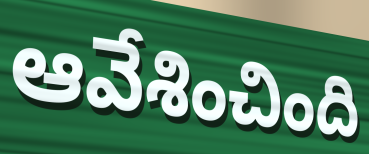
ఆవేశించింది